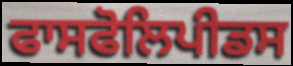
ਫਾਸਫੋਲਿਪੀਡਸ